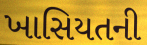
ખાસિયતની